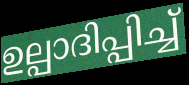
ഉല്പാദിപ്പിച്ച്